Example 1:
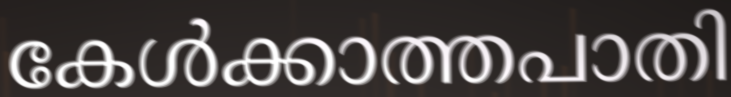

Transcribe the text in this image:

കേൾക്കാത്തപാതി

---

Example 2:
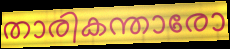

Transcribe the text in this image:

താരികന്താരോ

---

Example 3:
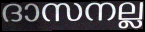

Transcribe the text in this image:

ദാസനല്ല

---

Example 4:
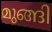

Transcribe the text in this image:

മുങ്ങി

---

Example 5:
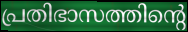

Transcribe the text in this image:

പ്രതിഭാസത്തിന്റെ